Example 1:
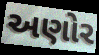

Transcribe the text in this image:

અણોર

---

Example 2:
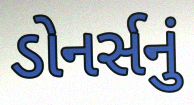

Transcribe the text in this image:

ડોનર્સનું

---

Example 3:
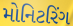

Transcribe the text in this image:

મોનિટરિંગ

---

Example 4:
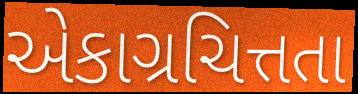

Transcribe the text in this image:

એકાગ્રચિત્તતા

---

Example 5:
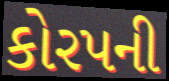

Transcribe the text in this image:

કોરપની